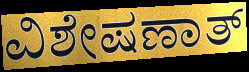
ವಿಶೇಷಣಾತ್